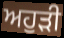
ਅਹੁੜੀ